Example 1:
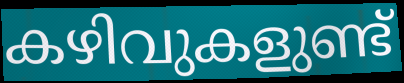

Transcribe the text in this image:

കഴിവുകളുണ്ട്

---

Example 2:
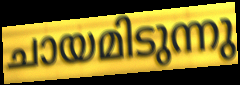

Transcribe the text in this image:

ചായമിടുന്നു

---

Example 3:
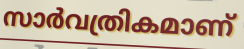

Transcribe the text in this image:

സാർവത്രികമാണ്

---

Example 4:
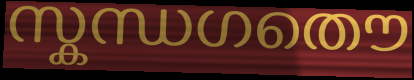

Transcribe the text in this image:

സ്കന്ധഗതൌ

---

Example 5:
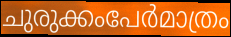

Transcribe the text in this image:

ചുരുക്കംപേർമാത്രം